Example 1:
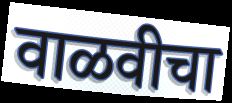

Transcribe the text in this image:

वाळवीचा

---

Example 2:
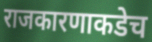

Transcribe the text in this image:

राजकारणाकडेच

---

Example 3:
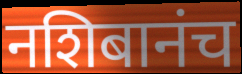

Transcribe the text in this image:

नशिबानंच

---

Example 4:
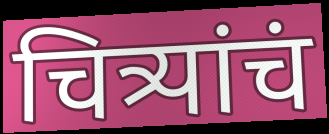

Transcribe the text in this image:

चित्र्यांचं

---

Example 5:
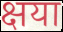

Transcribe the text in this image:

क्षया